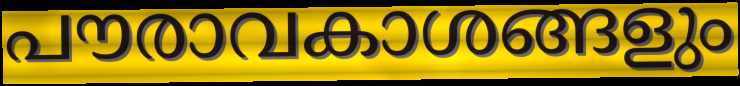
പൗരാവകാശങ്ങളും